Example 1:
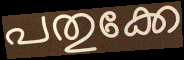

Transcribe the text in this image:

പതുക്കേ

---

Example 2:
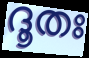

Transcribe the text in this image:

ദൂതഃ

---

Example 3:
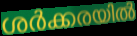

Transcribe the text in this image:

ശർക്കരയിൽ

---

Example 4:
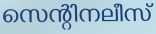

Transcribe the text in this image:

സെന്റിനലീസ്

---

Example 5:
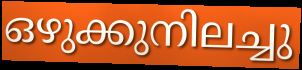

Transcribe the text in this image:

ഒഴുക്കുനിലച്ചു